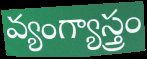
వ్యంగ్యాస్త్రం